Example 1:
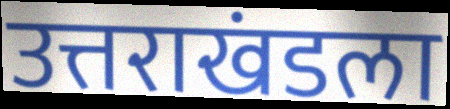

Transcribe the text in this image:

उत्तराखंडला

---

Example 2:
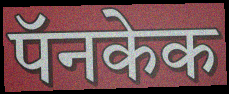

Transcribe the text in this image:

पॅनकेक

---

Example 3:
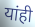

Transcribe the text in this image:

यांही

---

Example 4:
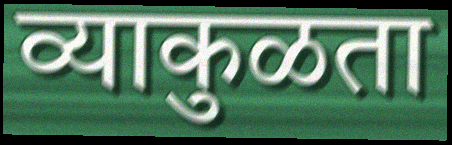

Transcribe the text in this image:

व्याकुळता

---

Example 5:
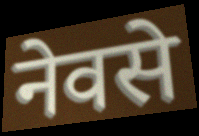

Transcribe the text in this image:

नेवसे